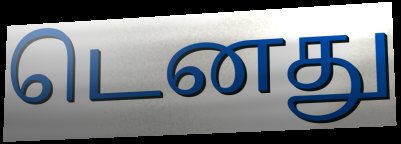
டெனது